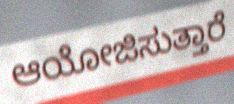
ಆಯೋಜಿಸುತ್ತಾರೆ